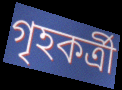
গৃহকর্ত্রী